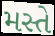
મસ્તે